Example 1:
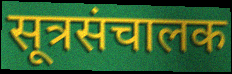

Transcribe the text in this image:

सूत्रसंचालक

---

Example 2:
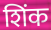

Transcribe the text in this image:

शिंक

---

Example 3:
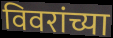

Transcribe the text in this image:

विवरांच्या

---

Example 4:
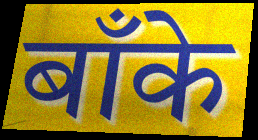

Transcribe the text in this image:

बाँके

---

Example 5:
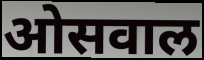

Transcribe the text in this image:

ओसवाल